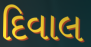
દિવાલ